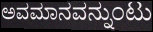
ಅವಮಾನವನ್ನುಂಟು